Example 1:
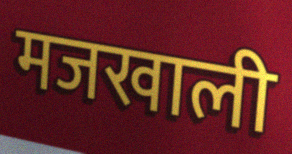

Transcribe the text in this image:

मजखाली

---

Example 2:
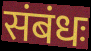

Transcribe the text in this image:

संबंधः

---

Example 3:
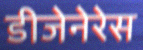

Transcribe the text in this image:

डीजेनेरेस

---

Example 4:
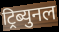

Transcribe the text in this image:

ट्रिब्युनल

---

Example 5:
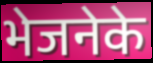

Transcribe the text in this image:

भेजनेके